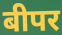
बीपर